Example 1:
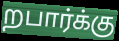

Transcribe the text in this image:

றபார்க்கு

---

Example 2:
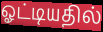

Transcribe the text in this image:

ஓட்டியதில்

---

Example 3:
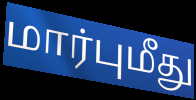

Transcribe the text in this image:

மார்புமீது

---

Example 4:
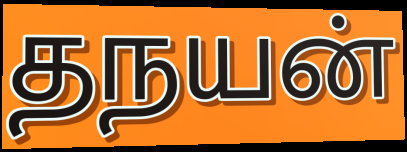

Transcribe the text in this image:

தநயன்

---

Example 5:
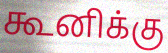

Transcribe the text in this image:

கூனிக்கு